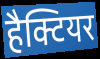
हैक्टियर